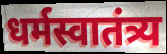
धर्मस्वातंत्र्य